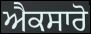
ਐਕਸਾਰੋ